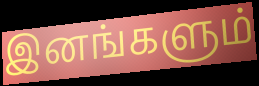
இனங்களும்